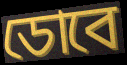
ডোবে